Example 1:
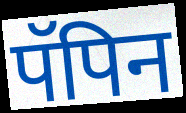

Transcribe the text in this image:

पॅपिन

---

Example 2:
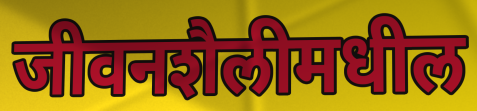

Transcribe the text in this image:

जीवनशैलीमधील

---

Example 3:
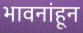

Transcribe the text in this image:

भावनांहून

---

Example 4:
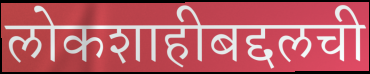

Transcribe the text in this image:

लोकशाहीबद्दलची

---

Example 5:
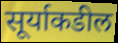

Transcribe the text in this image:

सूर्याकडील